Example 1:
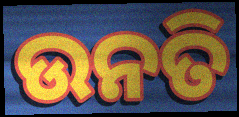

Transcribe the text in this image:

ଉନତି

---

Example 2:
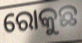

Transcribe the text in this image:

ରୋକୁଛ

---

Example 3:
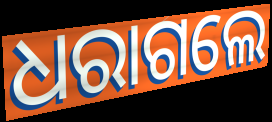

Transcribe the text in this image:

ଧରାଗଲେ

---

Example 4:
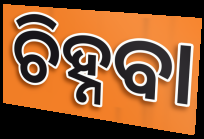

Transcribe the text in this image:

ଚିହ୍ନବା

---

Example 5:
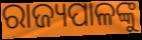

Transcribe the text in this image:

ରାଜ୍ୟପାଳଙ୍କୁ